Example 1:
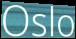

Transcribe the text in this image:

Oslo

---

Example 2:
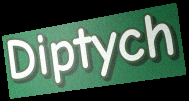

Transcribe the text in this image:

Diptych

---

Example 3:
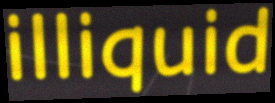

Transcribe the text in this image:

illiquid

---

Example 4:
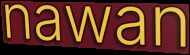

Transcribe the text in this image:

nawan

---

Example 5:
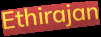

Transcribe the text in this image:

Ethirajan